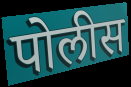
पोलीस